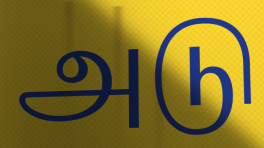
அடு